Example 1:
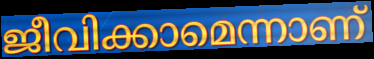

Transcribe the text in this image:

ജീവിക്കാമെന്നാണ്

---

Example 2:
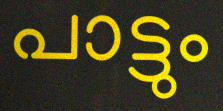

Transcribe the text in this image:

പാട്ടും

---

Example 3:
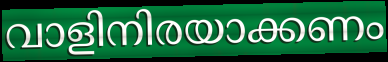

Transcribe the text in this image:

വാളിനിരയാക്കണം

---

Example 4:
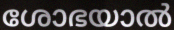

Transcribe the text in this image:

ശോഭയാൽ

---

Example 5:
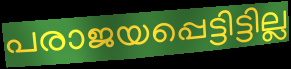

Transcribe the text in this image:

പരാജയപ്പെട്ടിട്ടില്ല